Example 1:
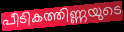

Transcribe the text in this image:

പീടികത്തിണ്ണയുടെ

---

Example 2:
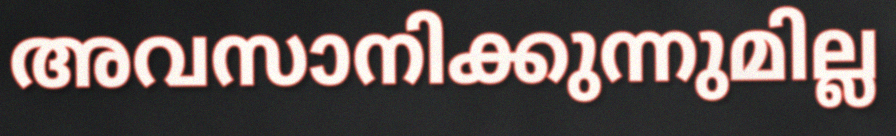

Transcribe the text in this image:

അവസാനിക്കുന്നുമില്ല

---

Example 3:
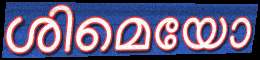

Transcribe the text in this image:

ശിമെയോ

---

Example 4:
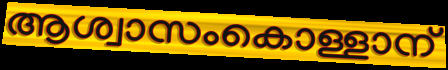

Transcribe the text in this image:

ആശ്വാസംകൊള്ളാന്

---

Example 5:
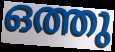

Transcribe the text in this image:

ഒത്തു